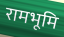
रामभूमि